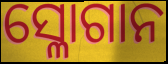
ସ୍ଳୋଗାନ